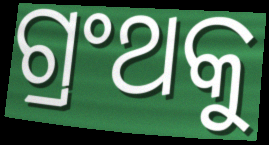
ଗ୍ରଂଥକୁ